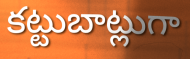
కట్టుబాట్లుగా